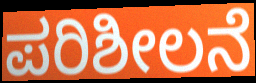
ಪರಿಶೀಲನೆ